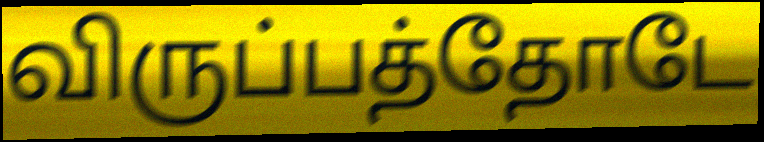
விருப்பத்தோடே